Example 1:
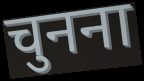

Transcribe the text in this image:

चुनना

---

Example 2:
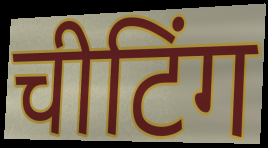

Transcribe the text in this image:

चीटिंग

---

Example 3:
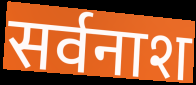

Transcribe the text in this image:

सर्वनाश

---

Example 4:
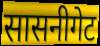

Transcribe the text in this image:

सासनीगेट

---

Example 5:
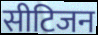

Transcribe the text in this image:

सीटिजन